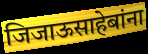
जिजाऊसाहेबांना